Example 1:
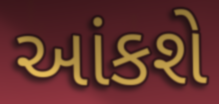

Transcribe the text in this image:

આંકશે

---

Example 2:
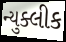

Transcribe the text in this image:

ન્યુક્લીક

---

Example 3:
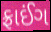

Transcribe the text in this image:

ફ્રાઈંગ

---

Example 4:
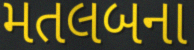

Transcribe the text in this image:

મતલબના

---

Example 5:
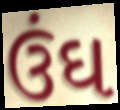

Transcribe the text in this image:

ઉંઘ